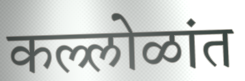
कल्लोळांत